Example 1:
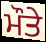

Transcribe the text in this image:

ਮੌਤੇ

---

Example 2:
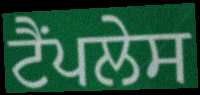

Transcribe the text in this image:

ਟੈਂਪਲੇਸ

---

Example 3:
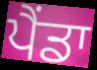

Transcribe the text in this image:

ਪੈਂਡਾ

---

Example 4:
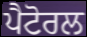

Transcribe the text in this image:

ਪੈਟੋਰਲ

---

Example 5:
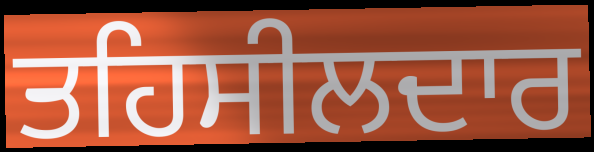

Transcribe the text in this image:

ਤਹਿਸੀਲਦਾਰ